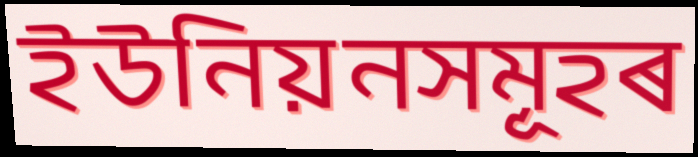
ইউনিয়নসমূহৰ